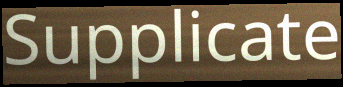
Supplicate